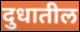
दुधातील